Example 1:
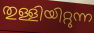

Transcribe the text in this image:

തുള്ളിയിറ്റുന്ന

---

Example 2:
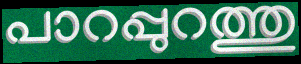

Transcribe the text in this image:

പാറപ്പുറത്തു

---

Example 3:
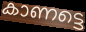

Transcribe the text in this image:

കാണട്ടെ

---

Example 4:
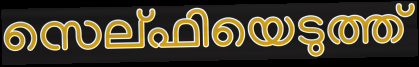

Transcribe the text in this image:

സെല്ഫിയെടുത്ത്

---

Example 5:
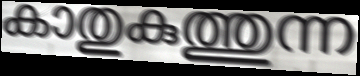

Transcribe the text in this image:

കാതുകുത്തുന്ന